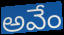
అవేం